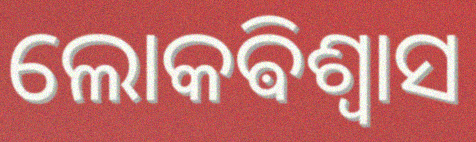
ଲୋକଵିଶ୍ଵାସ